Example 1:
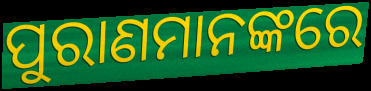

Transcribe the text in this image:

ପୁରାଣମାନଙ୍କରେ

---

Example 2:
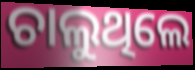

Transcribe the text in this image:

ଚାଲୁଥିଲେ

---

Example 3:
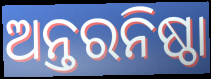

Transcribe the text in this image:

ଅନ୍ତରନିଷ୍ଠା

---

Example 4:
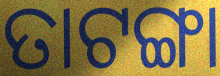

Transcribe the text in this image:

ତାଟଙ୍ଗା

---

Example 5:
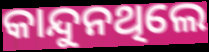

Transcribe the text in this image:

କାନ୍ଦୁନଥିଲେ